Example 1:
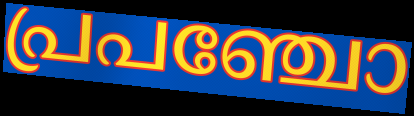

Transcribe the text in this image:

പ്രപഞ്ചോ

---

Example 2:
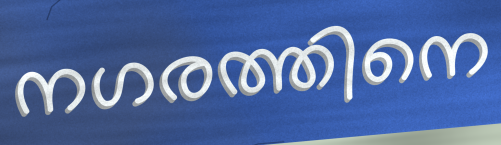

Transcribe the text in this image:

നഗരത്തിനെ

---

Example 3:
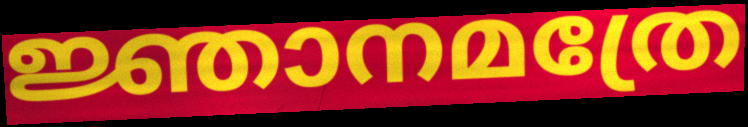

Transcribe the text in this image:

ജ്ഞാനമത്രേ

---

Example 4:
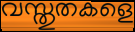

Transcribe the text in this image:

വസ്തുതകളെ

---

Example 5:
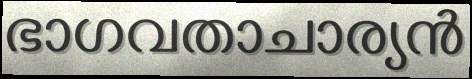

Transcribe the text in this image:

ഭാഗവതാചാര്യൻ